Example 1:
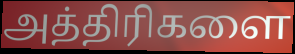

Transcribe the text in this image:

அத்திரிகளை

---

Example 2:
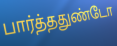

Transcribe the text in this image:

பார்த்ததுண்டோ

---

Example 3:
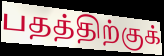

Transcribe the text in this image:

பதத்திற்குக்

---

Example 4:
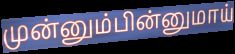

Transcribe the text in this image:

முன்னும்பின்னுமாய்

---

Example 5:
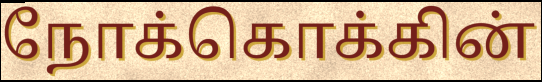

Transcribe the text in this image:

நோக்கொக்கின்